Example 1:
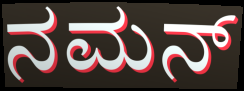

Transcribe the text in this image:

ನಮನ್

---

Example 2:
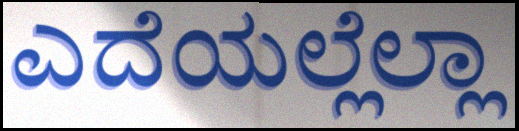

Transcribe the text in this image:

ಎದೆಯಲ್ಲೆಲ್ಲಾ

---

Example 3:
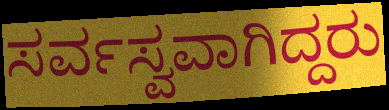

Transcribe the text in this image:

ಸರ್ವಸ್ವವಾಗಿದ್ದರು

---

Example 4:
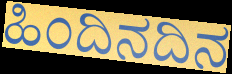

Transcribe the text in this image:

ಹಿಂದಿನದಿನ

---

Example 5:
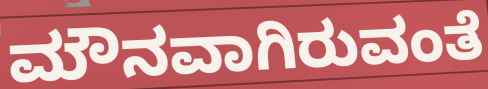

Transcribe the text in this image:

ಮೌನವಾಗಿರುವಂತೆ